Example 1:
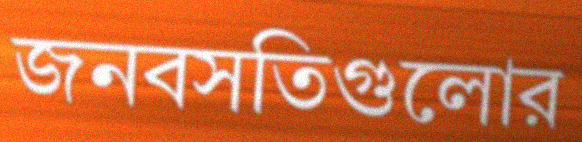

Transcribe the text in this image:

জনবসতিগুলোর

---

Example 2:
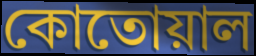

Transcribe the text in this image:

কোতোয়াল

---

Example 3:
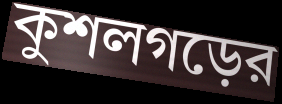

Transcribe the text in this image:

কুশলগড়ের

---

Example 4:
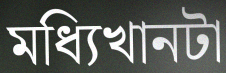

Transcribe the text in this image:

মধ্যিখানটা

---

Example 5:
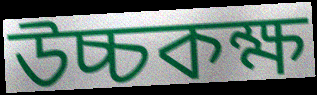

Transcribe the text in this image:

উচ্চকক্ষ